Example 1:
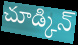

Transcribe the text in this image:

చూడ్కిన్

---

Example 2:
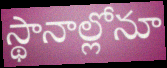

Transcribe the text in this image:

స్థానాల్లోనూ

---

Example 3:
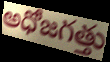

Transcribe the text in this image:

అధోజగత్తు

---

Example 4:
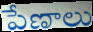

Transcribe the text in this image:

పేణాలు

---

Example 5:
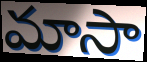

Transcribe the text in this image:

మాసా